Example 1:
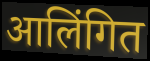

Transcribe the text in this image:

आलिंगित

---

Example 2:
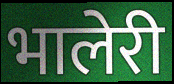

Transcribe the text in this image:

भालेरी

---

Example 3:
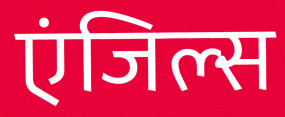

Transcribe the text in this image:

एंजिल्‍स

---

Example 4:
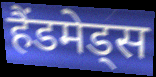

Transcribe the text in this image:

हैंडमेड्स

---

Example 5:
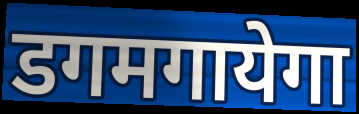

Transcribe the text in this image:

डगमगायेगा